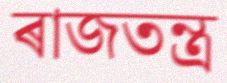
ৰাজতন্ত্ৰ